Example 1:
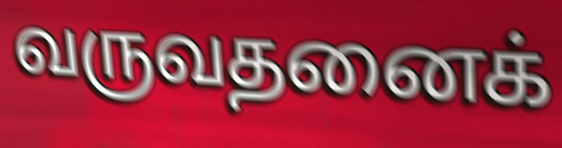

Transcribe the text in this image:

வருவதனைக்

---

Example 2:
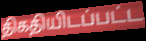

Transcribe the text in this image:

திகதியிடப்பட்ட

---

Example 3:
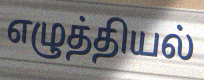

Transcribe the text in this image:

எழுத்தியல்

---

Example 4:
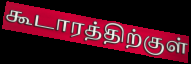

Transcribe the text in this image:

கூடாரத்திற்குள்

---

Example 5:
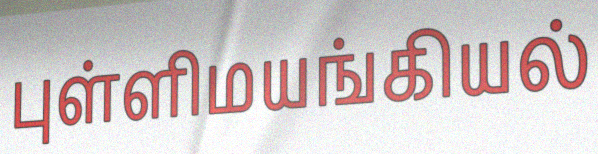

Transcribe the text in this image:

புள்ளிமயங்கியல்